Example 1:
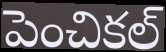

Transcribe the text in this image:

పెంచికల్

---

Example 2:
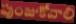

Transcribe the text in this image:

పుంజుకోవాలి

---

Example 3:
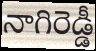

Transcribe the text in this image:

నాగిరెడ్డీ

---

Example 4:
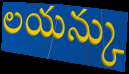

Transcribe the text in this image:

లయన్కు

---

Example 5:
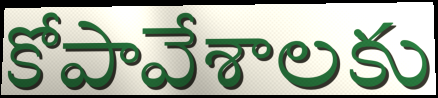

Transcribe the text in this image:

కోపావేశాలకు